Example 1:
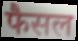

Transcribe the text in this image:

फैसल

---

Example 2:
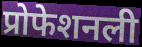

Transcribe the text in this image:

प्रोफेशनली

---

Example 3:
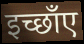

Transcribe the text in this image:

इच्छाँए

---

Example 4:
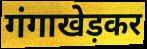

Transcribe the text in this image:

गंगाखेड़कर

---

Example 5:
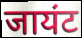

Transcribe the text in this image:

जायंट